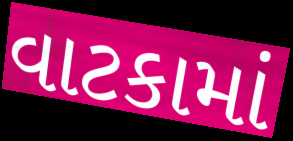
વાટકામાં